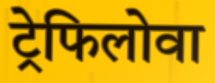
ट्रेफिलोवा